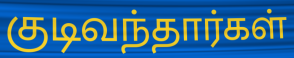
குடிவந்தார்கள்